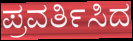
ಪ್ರವರ್ತಿಸಿದ